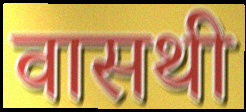
वासथी